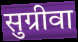
सुग्रीवा